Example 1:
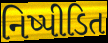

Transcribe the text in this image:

નિષ્પીડિત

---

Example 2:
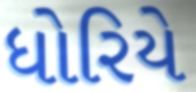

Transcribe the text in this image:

ધોરિયે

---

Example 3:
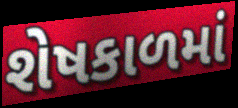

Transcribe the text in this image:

શેષકાળમાં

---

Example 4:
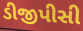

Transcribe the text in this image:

ડીજીપીસી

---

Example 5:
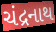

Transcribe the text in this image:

ચંદ્રનાથ